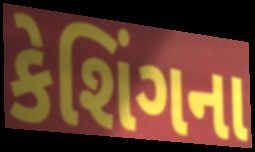
કેશિંગના